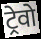
ट्रेवो